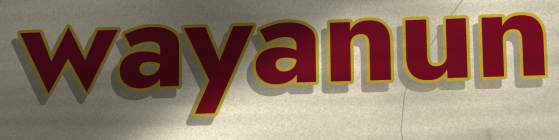
wayanun